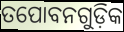
ତପୋବନଗୁଡ଼ିକ